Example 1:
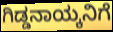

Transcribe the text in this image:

ಗಿಡ್ಡನಾಯ್ಕನಿಗೆ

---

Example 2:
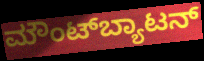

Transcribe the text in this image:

ಮೌಂಟ್‌ಬ್ಯಾಟನ್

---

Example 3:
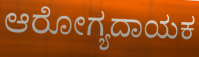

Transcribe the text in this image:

ಆರೋಗ್ಯದಾಯಕ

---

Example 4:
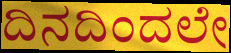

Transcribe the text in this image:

ದಿನದಿಂದಲೇ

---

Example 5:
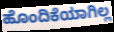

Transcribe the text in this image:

ಹೊಂದಿಕೆಯಾಗಿಲ್ಲ